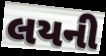
લયની